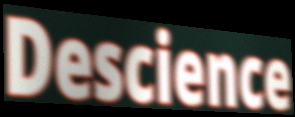
Descience